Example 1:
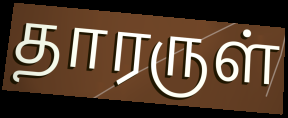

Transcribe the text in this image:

தாரருள்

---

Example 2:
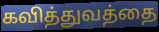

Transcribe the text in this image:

கவித்துவத்தை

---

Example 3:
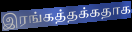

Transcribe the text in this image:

இரங்கத்தக்கதாக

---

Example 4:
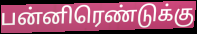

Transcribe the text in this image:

பன்னிரெண்டுக்கு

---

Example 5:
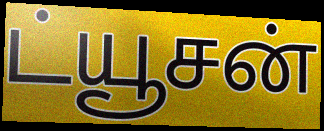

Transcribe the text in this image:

ட்யூசன்